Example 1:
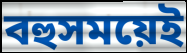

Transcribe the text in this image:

বহুসময়েই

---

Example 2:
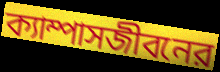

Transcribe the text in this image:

ক্যাম্পাসজীবনের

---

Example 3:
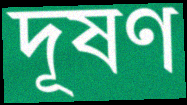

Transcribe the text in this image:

দূষণ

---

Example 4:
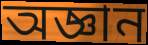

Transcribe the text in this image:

অজ্ঞান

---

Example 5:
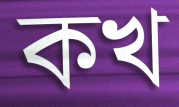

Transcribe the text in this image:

কখ